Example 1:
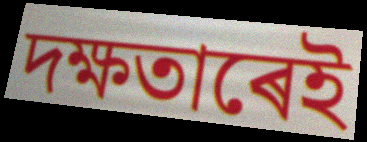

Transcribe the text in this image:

দক্ষতাৰেই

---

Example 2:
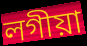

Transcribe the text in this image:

লগীয়া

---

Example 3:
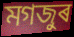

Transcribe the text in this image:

মগজুৰ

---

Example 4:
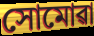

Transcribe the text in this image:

সোমোৱা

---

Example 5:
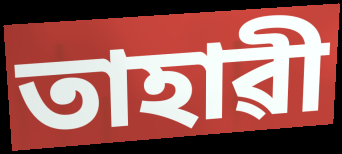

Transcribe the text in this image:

তাহাৱী